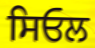
ਸਿਓਲ